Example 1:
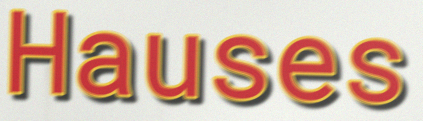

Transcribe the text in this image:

Hauses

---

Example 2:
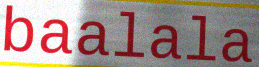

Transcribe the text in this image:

baalala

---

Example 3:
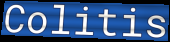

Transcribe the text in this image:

Colitis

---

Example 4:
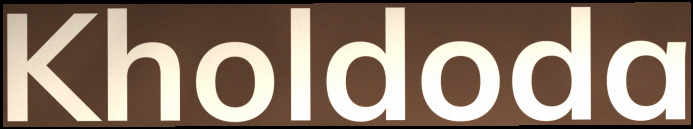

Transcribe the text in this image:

Kholdoda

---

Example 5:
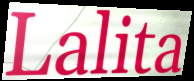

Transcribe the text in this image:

Lalita